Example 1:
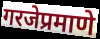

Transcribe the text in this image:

गरजेप्रमाणे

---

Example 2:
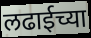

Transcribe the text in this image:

लढाईच्या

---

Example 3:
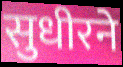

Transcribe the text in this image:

सुधीरने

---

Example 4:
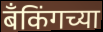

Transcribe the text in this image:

बँकिंगच्या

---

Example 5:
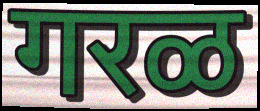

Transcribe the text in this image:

गरळ